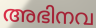
അഭിനവ